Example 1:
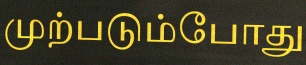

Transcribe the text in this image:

முற்படும்போது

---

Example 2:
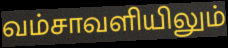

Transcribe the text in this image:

வம்சாவளியிலும்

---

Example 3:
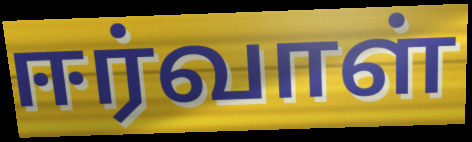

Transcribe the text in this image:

ஈர்வாள்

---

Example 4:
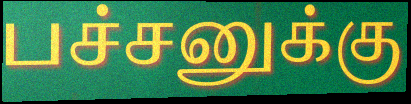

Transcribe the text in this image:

பச்சனுக்கு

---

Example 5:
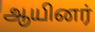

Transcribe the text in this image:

ஆயினர்